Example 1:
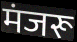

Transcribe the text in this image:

मंजरू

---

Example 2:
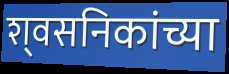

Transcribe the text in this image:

श्वसनिकांच्या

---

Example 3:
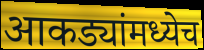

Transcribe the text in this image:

आकड्यांमध्येच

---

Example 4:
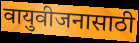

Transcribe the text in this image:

वायुवीजनासाठी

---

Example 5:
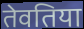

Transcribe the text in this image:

तेवतिया